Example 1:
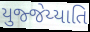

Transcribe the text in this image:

યુજ્જેય્યાતિ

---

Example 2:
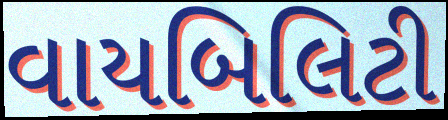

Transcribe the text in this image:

વાયબિલિટી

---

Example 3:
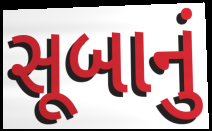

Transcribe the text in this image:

સૂબાનું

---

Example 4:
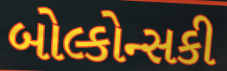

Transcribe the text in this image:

બોલ્કોન્સકી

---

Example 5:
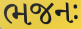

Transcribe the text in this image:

ભજનઃ